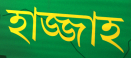
হাজ্জাহ